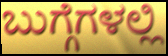
ಬುಗ್ಗೆಗಳಲ್ಲಿ